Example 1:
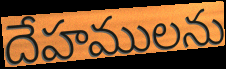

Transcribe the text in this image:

దేహములను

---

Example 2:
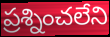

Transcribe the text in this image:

ప్రశ్నించలేని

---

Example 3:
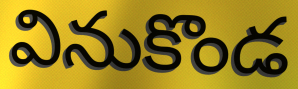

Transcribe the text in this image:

వినుకొండ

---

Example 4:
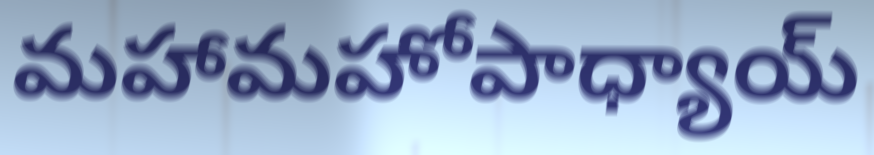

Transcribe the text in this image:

మహామహోపాధ్యాయ్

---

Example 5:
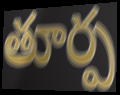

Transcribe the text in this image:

తూర్ప